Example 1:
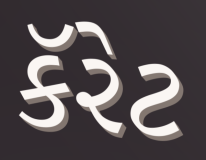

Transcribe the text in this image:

કૅરેટ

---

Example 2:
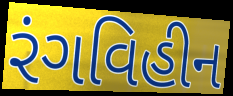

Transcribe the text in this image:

રંગવિહીન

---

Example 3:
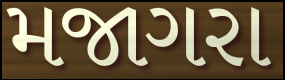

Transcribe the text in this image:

મજાગરા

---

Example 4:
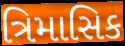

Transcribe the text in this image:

ત્રિમાસિક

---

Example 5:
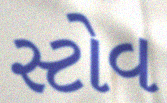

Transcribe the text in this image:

સ્ટોવ